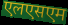
एलएसएम